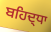
ਬਹਿਦ੍ਧਾ